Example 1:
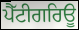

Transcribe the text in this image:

ਪੈੱਟੀਗਰਿਊ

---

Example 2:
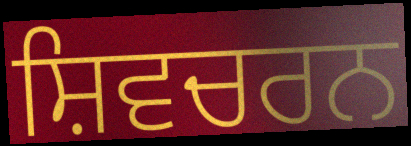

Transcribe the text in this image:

ਸ਼ਿਵਚਰਨ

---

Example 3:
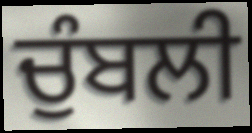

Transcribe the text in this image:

ਚੁੰਬਲੀ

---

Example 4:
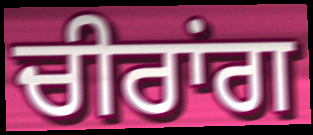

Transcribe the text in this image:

ਚੀਰਾਂਗ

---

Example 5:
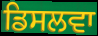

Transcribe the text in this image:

ਡਿਸਲਵਾ